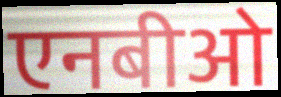
एनबीओ